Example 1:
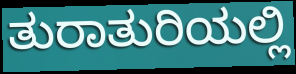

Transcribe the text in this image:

ತುರಾತುರಿಯಲ್ಲಿ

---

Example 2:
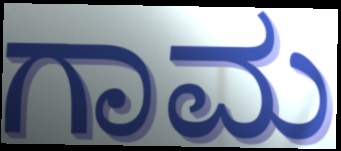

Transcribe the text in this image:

ಗಾಮ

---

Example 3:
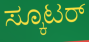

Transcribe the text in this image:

ಸ್ಕೂಟರ್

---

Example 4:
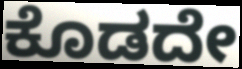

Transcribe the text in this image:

ಕೊಡದೇ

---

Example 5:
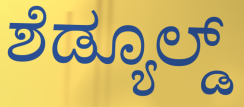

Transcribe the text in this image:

ಶೆಡ್ಯೂಲ್ಡ್